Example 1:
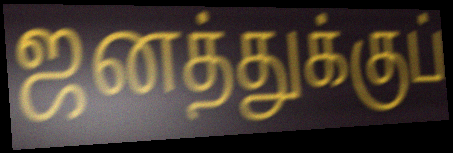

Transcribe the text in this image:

ஜனத்துக்குப்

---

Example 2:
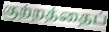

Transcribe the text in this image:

குற்றத்தைப்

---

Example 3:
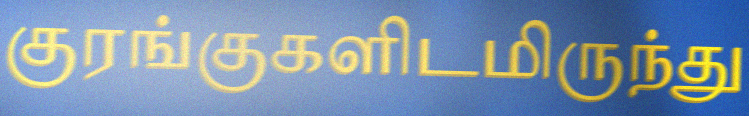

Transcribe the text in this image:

குரங்குகளிடமிருந்து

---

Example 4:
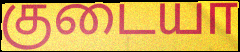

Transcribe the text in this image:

குடையா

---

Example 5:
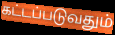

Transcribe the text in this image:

கட்டப்படுவதும்